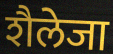
शैलेजा